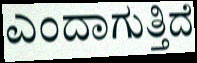
ಎಂದಾಗುತ್ತಿದೆ